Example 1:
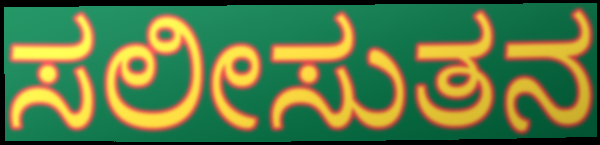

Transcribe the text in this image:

ಸಲೀಸುತನ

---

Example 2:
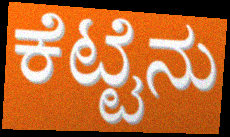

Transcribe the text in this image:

ಕೆಟ್ಟೆನು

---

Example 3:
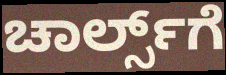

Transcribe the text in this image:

ಚಾರ್ಲ್ಸ್‌ಗೆ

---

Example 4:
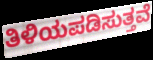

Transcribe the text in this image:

ತಿಳಿಯಪಡಿಸುತ್ತವೆ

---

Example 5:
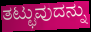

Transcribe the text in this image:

ತಟ್ಟುವುದನ್ನು